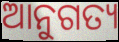
ଆନୁଗତ୍ୟ